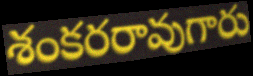
శంకరరావుగారు